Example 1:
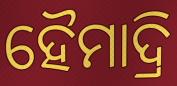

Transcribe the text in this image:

ହୈମାଦ୍ରି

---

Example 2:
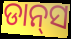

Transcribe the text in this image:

ଡାନ୍‍ସ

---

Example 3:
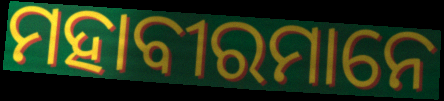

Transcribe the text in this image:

ମହାବୀରମାନେ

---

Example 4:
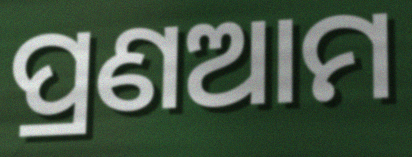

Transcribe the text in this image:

ପ୍ରଣଆମ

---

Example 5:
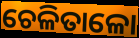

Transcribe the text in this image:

ଚେଳିତାଳୋ